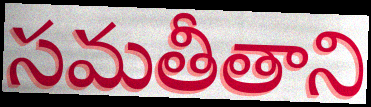
సమతీతాని